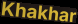
Khakhar